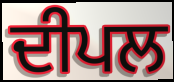
ਦੀਪਲ